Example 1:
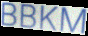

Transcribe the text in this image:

BBKM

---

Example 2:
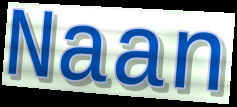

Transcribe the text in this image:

Naan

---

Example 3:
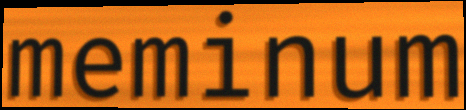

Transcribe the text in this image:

meminum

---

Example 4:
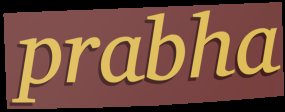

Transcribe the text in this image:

prabha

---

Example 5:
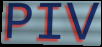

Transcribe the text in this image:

PIV